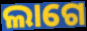
ଲାଗେ